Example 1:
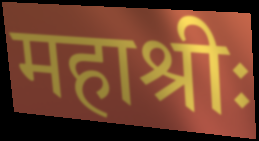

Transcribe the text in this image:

महाश्रीः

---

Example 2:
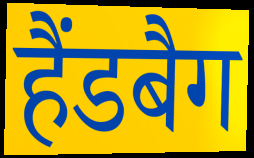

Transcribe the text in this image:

हैंडबैग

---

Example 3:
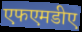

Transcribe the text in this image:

एफएमडीए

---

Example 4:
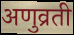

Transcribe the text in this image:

अणुव्रती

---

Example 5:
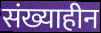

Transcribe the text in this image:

संख्याहीन